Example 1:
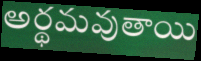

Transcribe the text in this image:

అర్థమవుతాయి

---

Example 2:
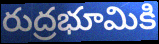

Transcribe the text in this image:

రుద్రభూమికి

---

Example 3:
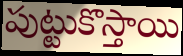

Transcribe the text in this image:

పుట్టుకొస్తాయి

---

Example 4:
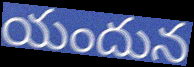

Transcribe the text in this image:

యందున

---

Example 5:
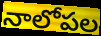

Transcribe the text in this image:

నాలోపల